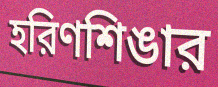
হরিণশিঙার